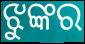
ଝୁଙ୍କର